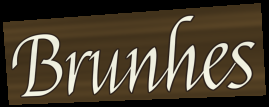
Brunhes